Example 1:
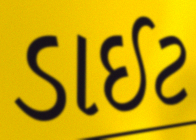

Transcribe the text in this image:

ડાઈટ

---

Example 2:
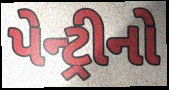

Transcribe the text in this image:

પેન્ટ્રીનો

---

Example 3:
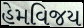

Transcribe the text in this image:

હેમવિજય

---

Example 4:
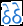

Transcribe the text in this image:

ઠેઠે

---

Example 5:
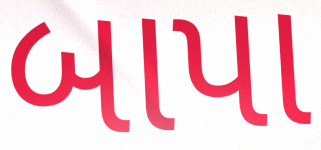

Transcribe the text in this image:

બાપા